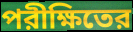
পরীক্ষিতের